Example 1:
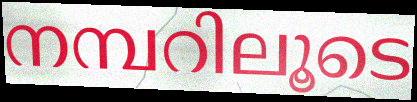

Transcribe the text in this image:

നമ്പറിലൂടെ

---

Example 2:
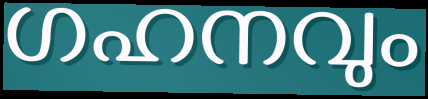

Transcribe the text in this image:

ഗഹനവും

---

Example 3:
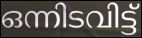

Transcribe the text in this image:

ഒന്നിടവിട്ട്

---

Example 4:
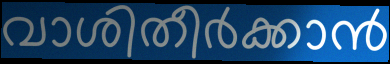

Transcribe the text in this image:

വാശിതീർക്കാൻ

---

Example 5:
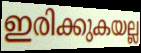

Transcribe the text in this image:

ഇരിക്കുകയല്ല